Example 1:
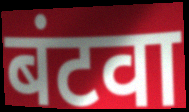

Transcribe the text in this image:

बंटवा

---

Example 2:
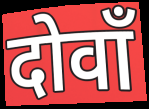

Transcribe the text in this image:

दोवाँ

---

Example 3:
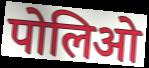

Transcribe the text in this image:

पोलिओ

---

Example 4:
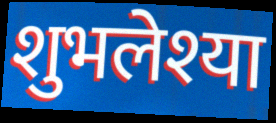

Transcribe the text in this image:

शुभलेश्या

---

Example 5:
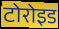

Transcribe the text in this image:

टोरोइड